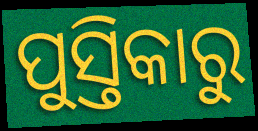
ପୁସ୍ତିକାରୁ